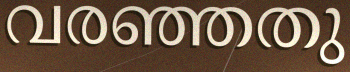
വരഞ്ഞതു